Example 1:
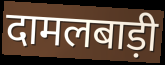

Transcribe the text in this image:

दामलबाड़ी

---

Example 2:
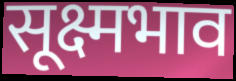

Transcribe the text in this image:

सूक्ष्मभाव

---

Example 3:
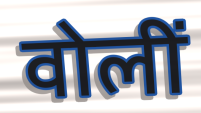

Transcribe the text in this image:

वोलीं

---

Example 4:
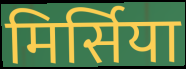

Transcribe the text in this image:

मिर्सिया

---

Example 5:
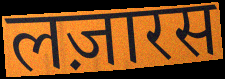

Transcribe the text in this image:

लज़ारस